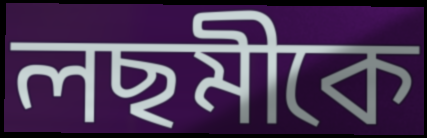
লছমীকে